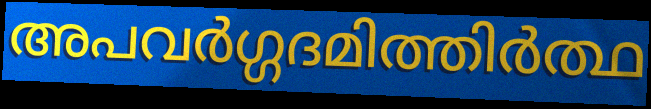
അപവർഗ്ഗദമിത്തിർത്ഥ